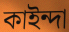
কাইন্দা